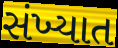
સંખ્યાત